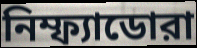
নিম্ফ্যাডোরা